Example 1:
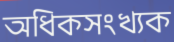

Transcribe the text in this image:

অধিকসংখ্যক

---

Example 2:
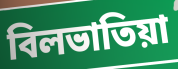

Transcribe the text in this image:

বিলভাতিয়া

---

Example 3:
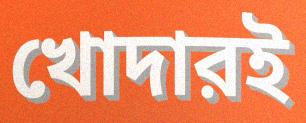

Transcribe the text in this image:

খোদারই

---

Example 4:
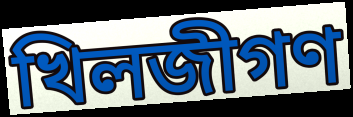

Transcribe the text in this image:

খিলজীগণ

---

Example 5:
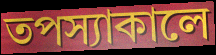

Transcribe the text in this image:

তপস্যাকালে